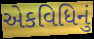
એકવિધિનું